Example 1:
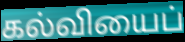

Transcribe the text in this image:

கல்வியைப்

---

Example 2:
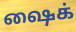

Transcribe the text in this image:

ஷைக்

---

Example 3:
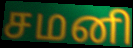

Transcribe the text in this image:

சமனி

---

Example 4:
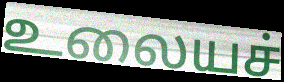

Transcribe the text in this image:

உலையச்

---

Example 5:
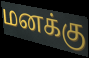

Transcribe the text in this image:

மனக்கு